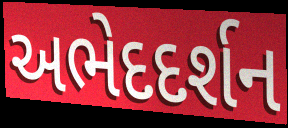
અભેદદર્શન